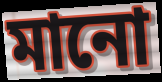
মানো